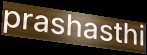
prashasthi